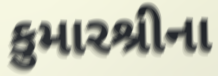
કુમારશ્રીના